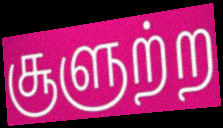
சூளுற்ற